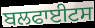
ਬਲਫਾਈਟਸ